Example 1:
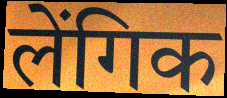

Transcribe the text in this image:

लेंगिक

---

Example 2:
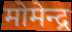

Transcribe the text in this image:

मोमेन्द्र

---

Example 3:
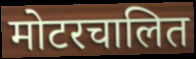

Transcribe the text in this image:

मोटरचालित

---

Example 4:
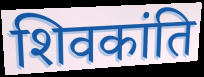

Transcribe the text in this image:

शिवकांति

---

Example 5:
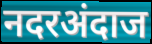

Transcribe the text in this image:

नदरअंदाज